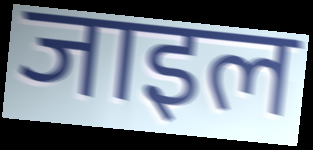
जाइल